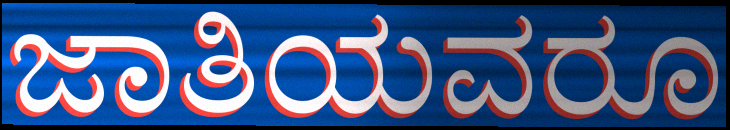
ಜಾತಿಯವರೂ